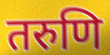
तरुणि